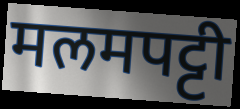
मलमपट्टी